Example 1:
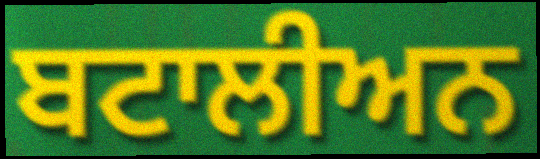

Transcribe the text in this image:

ਬਟਾਲੀਅਨ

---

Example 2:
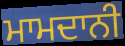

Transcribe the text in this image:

ਮਾਮਦਾਨੀ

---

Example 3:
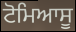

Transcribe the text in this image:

ਟੋਮਿਆਸੂ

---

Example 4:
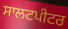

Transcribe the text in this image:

ਸਾਲਟਪੀਟਰ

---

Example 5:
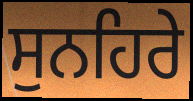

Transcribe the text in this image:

ਸੁਨਹਿਰੇ